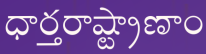
ధార్తరాష్ట్రాణాం